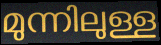
മുന്നിലുള്ള